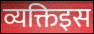
व्यक्तिइस